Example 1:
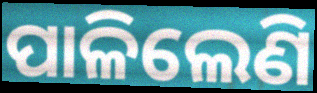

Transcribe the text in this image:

ପାଳିଲେଣି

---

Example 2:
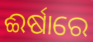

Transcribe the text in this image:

ଈର୍ଷାରେ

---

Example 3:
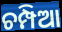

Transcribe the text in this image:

ଚମ୍ପିଆ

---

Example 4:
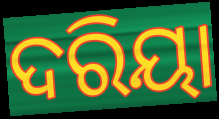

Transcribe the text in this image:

ଦରିୟା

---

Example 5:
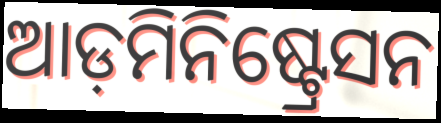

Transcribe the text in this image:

ଆଡ଼ମିନିଷ୍ଟ୍ରେସନ